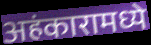
अहंकारामध्ये